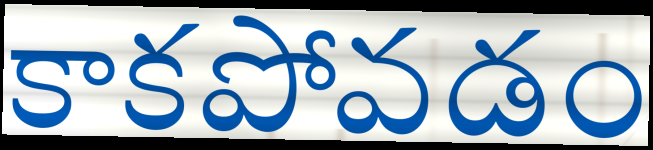
కాకపోవడం